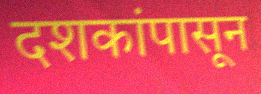
दशकांपासून